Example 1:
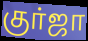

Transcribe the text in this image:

குர்ஜா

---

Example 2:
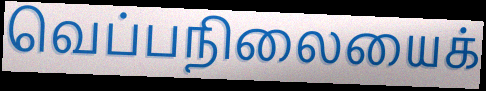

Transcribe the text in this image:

வெப்பநிலையைக்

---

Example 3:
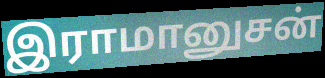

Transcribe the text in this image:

இராமானுசன்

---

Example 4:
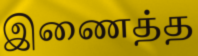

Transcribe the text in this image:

இணைத்த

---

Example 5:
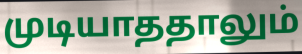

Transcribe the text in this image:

முடியாததாலும்